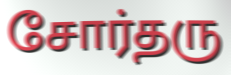
சோர்தரு